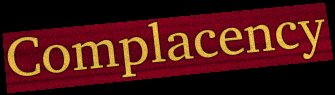
Complacency